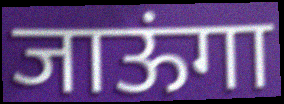
जाऊंगा